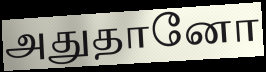
அதுதானோ